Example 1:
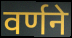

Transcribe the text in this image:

वर्णने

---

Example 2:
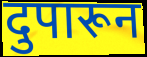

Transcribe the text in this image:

दुपारून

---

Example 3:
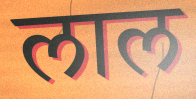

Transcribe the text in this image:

लाल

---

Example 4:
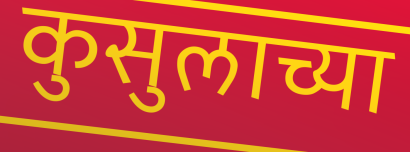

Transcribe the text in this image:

कुसुलाच्या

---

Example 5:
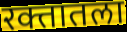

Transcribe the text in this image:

रक्तातला